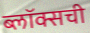
ब्लॉक्सची